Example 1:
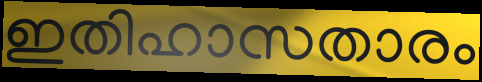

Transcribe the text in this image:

ഇതിഹാസതാരം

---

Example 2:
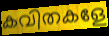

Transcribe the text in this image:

കവിതകളേ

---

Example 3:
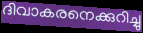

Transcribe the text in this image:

ദിവാകരനെക്കുറിച്ചു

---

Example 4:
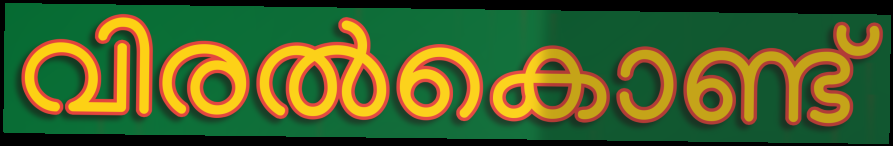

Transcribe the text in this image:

വിരൽകൊണ്ട്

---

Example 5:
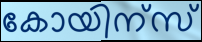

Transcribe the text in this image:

കോയിന്സ്